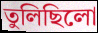
তুলিছিলো